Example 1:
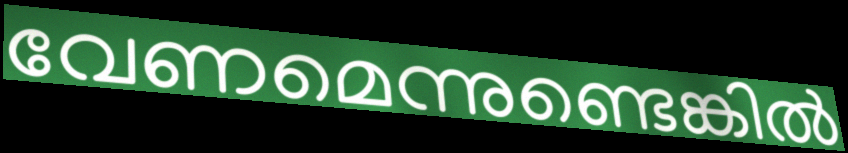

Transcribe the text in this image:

വേണമെന്നുണ്ടെങ്കിൽ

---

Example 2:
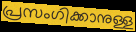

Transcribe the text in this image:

പ്രസംഗിക്കാനുള്ള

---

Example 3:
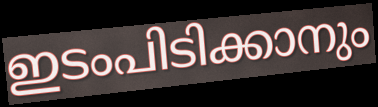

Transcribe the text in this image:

ഇടംപിടിക്കാനും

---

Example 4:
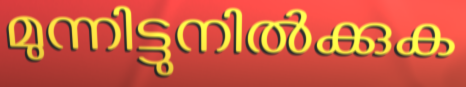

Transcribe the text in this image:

മുന്നിട്ടുനിൽക്കുക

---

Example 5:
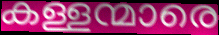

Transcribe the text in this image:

കള്ളന്മാരെ